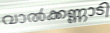
വാൽക്കണ്ണാടി